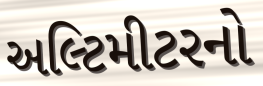
અલ્ટિમીટરનો